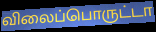
விலைப்பொருட்டா